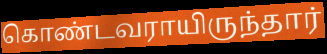
கொண்டவராயிருந்தார்